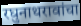
रघुनाथरावांचा